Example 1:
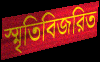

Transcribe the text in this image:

স্মৃতিবিজরিত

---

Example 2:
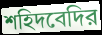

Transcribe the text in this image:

শহিদবেদির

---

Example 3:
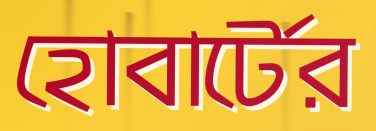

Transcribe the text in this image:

হোবার্টের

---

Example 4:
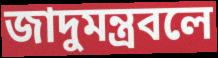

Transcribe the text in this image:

জাদুমন্ত্রবলে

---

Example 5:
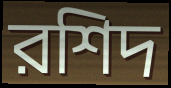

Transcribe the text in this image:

রশিদ